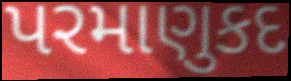
પરમાણુકદ